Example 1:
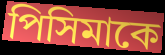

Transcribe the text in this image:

পিসিমাকে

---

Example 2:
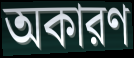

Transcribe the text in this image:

অকারণ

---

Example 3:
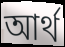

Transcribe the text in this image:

আর্থ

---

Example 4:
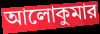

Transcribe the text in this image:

আলোকুমার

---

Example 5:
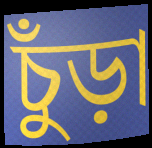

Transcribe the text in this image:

চুঁড়া